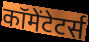
कॉमेंटेटर्स